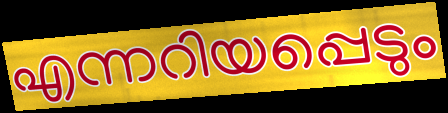
എന്നറിയപ്പെടും